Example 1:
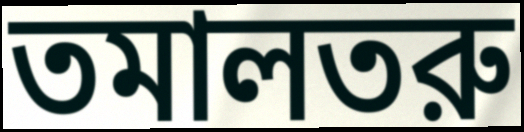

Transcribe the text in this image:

তমালতরু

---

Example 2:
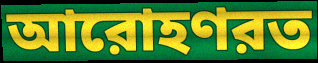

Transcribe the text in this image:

আরোহণরত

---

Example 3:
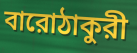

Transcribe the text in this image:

বারোঠাকুরী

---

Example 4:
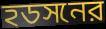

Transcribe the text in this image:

হডসনের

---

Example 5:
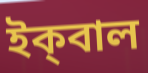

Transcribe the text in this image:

ইক্‌বাল